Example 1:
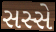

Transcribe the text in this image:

સસ્સે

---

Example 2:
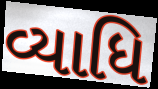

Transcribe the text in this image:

વ્યાધિ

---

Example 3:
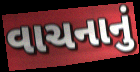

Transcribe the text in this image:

વાચનાનું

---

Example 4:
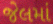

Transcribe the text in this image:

જેલમાં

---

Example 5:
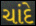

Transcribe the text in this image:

ચાંદે